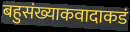
बहुसंख्याकवादाकडं